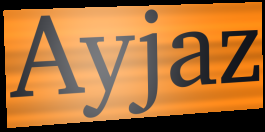
Ayjaz